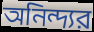
অনিন্দ্যর